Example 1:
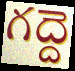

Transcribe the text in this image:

గద్దె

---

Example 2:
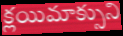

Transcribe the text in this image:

క్లయిమాక్సుని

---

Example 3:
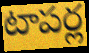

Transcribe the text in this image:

టాపర్ల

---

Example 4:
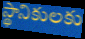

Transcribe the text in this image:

స్థానికులకు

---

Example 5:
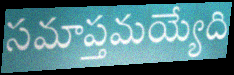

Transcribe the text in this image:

సమాప్తమయ్యేది